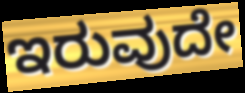
ಇರುವುದೇ